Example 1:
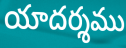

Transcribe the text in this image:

యాదర్శము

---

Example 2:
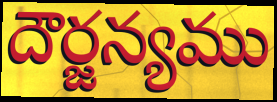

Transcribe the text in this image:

దౌర్జన్యము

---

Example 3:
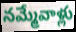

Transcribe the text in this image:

నమ్మేవాళ్లు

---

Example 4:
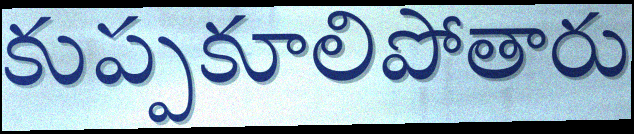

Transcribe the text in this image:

కుప్పకూలిపోతారు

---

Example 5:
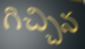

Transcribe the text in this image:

గిచ్చిన